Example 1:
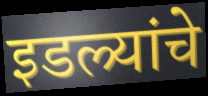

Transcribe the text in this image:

इडल्यांचे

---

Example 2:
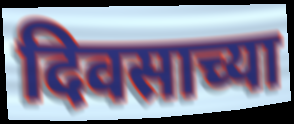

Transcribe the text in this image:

दिवसाच्या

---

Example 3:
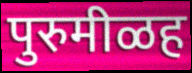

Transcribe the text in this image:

पुरुमीळह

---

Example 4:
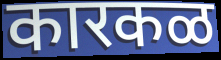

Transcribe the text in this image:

कारकळ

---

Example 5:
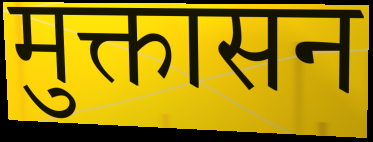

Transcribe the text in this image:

मुक्तासन